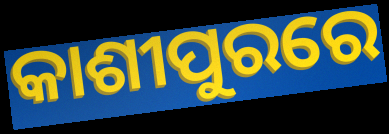
କାଶୀପୁରରେ